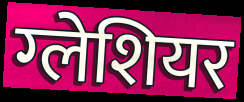
ग्‍लेशियर